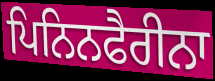
ਪਿਨਿਨਫੈਰੀਨਾ